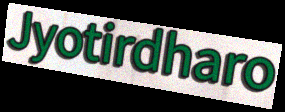
Jyotirdharo